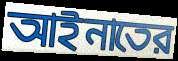
আইনাতের